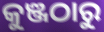
କୁଞ୍ଜଠାରୁ